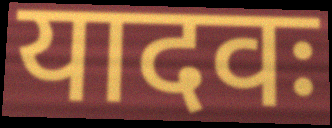
यादवः